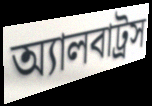
অ্যালবাট্রস